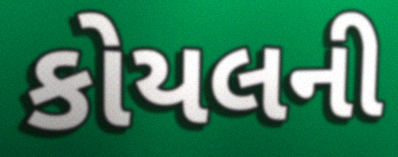
કોયલની